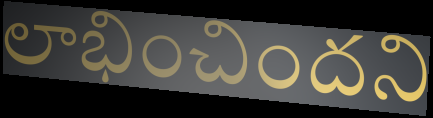
లాభించిందని